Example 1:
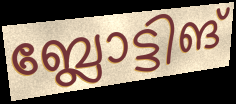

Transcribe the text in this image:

ബ്ലോട്ടിങ്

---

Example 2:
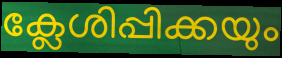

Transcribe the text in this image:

ക്ലേശിപ്പിക്കയും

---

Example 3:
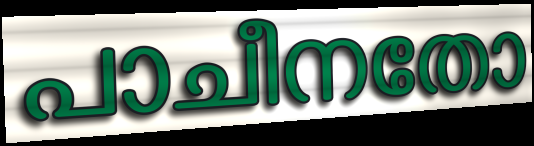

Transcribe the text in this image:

പാചീനതോ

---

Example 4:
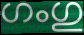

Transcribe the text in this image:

ഗംഗു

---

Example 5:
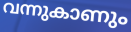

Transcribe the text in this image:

വന്നുകാണും